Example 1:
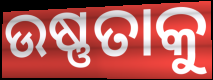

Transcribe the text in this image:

ଉଷ୍ଣତାକୁ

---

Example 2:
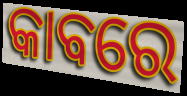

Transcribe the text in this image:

କାବରେ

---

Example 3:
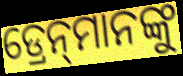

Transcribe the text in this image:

ଡ୍ରେନ୍‌ମାନଙ୍କୁ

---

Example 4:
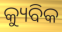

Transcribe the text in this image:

କ୍ୟୁବିକ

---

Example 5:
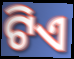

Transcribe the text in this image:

ଟିଏ